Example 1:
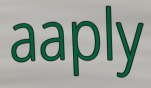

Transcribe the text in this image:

aaply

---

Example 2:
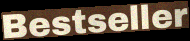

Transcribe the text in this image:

Bestseller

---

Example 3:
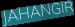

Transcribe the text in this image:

JAHANGIR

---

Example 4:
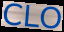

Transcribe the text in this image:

CLO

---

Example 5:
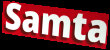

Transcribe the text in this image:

Samta